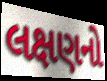
લક્ષણનો